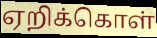
ஏறிக்கொள்